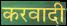
करवादी